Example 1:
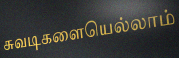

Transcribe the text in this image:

சுவடிகளையெல்லாம்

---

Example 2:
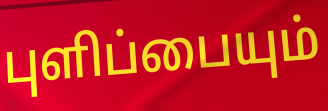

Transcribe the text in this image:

புளிப்பையும்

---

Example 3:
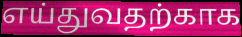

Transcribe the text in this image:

எய்துவதற்காக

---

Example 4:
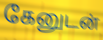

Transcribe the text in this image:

கேனுடன்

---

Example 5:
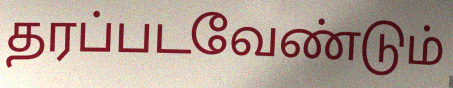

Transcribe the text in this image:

தரப்படவேண்டும்